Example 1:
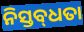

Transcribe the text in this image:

ନିସ୍ତବ୍‌ଧତା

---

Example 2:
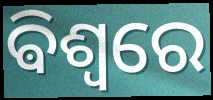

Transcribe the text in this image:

ଵିଶ୍ଵରେ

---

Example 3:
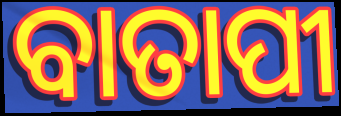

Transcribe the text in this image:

ବାତାପୀ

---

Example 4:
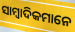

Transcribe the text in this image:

ସାମ୍ବାଦିକମାନେ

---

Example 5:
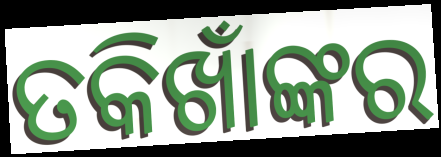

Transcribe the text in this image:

ତକିଖାଁଙ୍କର